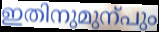
ഇതിനുമുന്പും